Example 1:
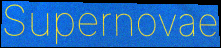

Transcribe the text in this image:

Supernovae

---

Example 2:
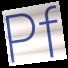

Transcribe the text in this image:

Pf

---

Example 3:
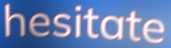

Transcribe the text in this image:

hesitate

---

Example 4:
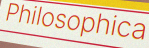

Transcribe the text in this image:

Philosophica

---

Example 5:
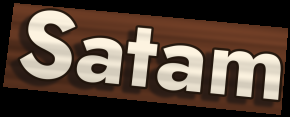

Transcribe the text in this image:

Satam